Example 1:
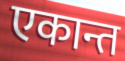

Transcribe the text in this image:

एकान्त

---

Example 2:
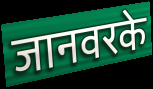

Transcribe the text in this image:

जानवरके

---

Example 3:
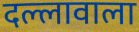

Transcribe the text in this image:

दल्लावाला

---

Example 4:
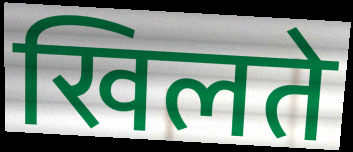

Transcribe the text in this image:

खिलते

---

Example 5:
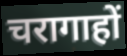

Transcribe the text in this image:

चरागाहों